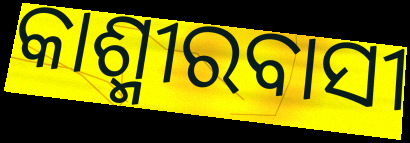
କାଶ୍ମୀରବାସୀ